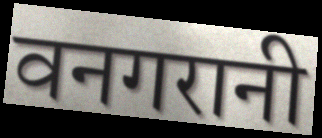
वनगरानी